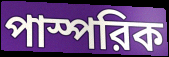
পাস্পরিক